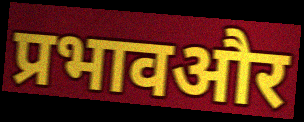
प्रभावऔर